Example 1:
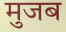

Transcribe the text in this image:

मुजब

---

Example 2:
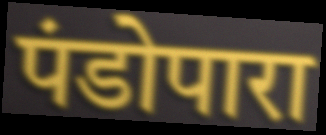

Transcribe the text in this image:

पंडोपारा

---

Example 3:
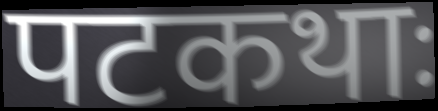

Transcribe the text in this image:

पटकथाः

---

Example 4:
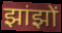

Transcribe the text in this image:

झांझों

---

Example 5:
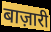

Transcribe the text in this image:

बाज़ारी